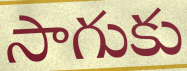
సాగుకు